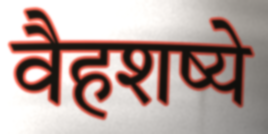
वैहशष्ये